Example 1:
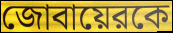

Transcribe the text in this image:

জোবায়েরকে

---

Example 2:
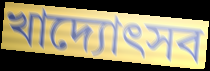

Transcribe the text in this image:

খাদ্যোৎসব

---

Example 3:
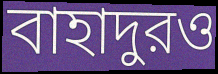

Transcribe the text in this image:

বাহাদুরও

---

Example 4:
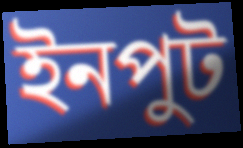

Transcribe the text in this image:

ইনপুট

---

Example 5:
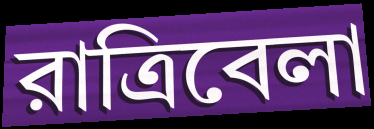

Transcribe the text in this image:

রাত্রিবেলা